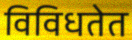
विविधतेत